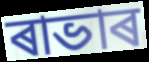
ৰাভাৰ